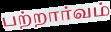
பற்றார்வம்